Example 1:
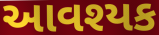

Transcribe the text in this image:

આવશ્યક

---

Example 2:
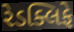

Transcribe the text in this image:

રેડક્લિફે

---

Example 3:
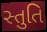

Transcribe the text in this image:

સ્તુતિ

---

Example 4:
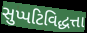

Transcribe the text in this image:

સુપ્પટિવિદ્ધત્તા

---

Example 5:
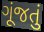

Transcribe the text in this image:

ગૂંજતું